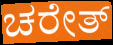
ಚರೇತ್